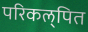
परिकल्पित